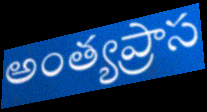
అంత్యప్రాస